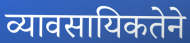
व्यावसायिकतेने